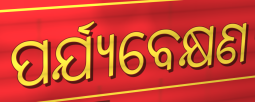
ପର୍ଯ୍ୟବେକ୍ଷଣ